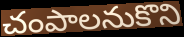
చంపాలనుకొని